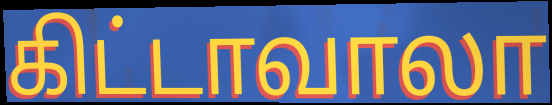
கிட்டாவாலா